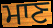
ਮਾਣ